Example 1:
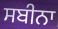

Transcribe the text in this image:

ਸਬੀਨਾ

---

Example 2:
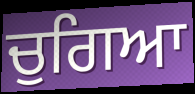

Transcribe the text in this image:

ਚੁਗਿਆ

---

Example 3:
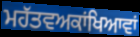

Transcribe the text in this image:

ਮਹੱਤਵਅਕਾਂਖਿਆਵਾਂ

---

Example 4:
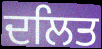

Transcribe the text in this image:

ਦਲਿਤ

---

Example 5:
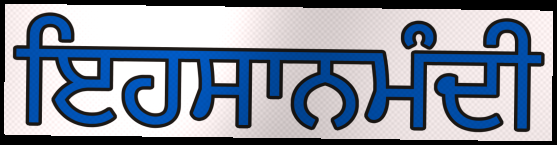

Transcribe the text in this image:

ਇਹਸਾਨਮੰਦੀ